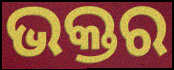
ଭକ୍ତର